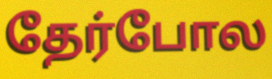
தேர்போல